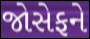
જોસેફને